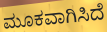
ಮೂಕವಾಗಿಸಿದೆ